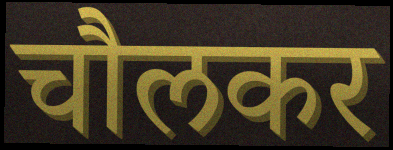
चौलकर